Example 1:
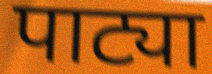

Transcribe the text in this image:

पाट्या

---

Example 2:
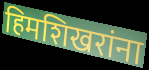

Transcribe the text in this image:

हिमशिखरांना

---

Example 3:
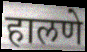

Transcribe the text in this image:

हालणे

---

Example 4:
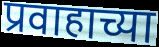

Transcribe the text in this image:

प्रवाहाच्या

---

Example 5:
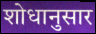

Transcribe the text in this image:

शोधानुसार